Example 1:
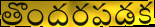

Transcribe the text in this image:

తొందరపడక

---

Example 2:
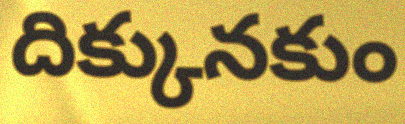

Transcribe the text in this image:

దిక్కునకుం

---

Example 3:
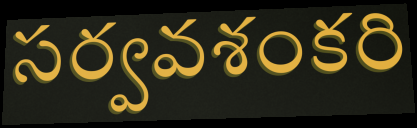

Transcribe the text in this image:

సర్వవశంకరి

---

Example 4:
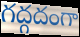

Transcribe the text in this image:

గద్గదంగా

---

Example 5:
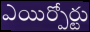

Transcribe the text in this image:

ఎయిర్పోర్టు